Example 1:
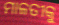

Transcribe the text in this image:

ମାଳତୀକୁ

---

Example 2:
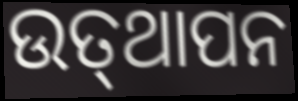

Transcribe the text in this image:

ଉତ୍‍ଥାପନ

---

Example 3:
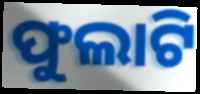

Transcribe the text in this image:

ଫୁଲାଟି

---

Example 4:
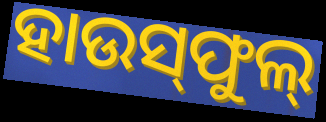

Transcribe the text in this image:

ହାଉସ୍‌ଫୁଲ୍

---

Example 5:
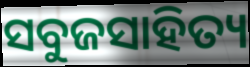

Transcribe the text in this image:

ସବୁଜସାହିତ୍ୟ